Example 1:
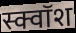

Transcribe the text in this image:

स्क्वॉश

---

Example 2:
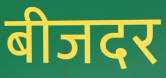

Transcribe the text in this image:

बीजदर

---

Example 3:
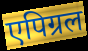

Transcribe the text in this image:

एपिग्रल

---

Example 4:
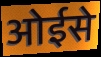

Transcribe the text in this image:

ओईसे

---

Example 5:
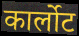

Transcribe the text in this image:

कार्लोट